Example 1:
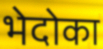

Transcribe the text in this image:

भेदोका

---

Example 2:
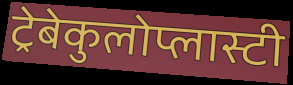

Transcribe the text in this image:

ट्रेबेकुलोप्लास्टी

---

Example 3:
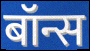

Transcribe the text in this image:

बॉन्स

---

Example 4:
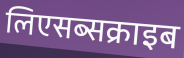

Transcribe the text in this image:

लिएसब्सक्राइब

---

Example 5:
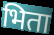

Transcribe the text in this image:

भिता